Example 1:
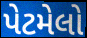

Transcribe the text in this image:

પેટમેલો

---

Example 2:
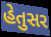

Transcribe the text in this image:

હેતુસર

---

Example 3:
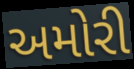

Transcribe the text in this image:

અમોરી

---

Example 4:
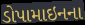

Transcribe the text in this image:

ડોપામાઇનના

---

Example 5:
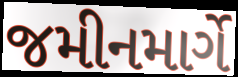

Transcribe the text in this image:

જમીનમાર્ગે